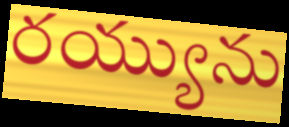
రయ్యును